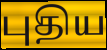
புதிய